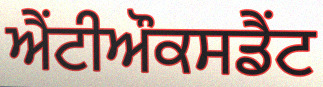
ਐਂਟੀਔਕਸਡੈਂਟ